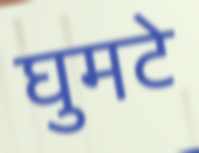
घुमटे